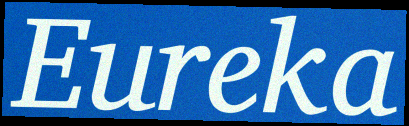
Eureka